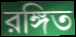
রঙ্গিত